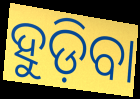
ହୁଡ଼ିବା